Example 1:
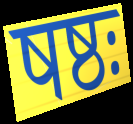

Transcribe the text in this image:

षष्ठः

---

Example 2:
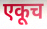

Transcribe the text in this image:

एकूच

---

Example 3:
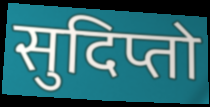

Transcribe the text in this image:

सुदिप्तो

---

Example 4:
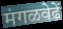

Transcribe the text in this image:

मंगळवेढें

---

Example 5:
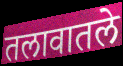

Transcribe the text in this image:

तलावातले